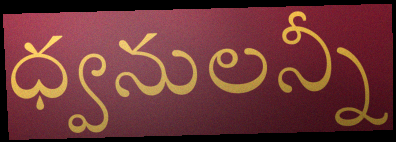
ధ్వనులన్నీ